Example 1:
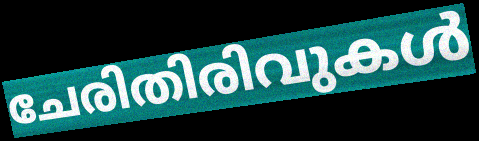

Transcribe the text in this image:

ചേരിതിരിവുകൾ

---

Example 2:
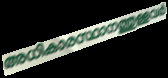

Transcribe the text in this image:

അധികാരസ്ഥാനത്തുള്ളവർ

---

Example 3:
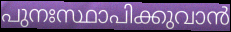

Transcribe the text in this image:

പുനഃസ്ഥാപിക്കുവാൻ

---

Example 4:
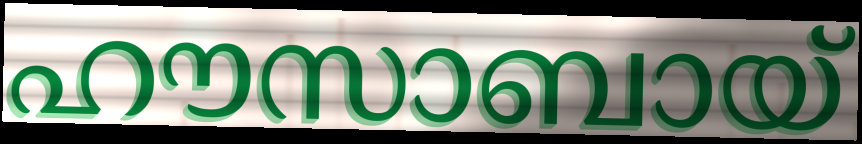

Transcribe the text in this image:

ഹൗസാബായ്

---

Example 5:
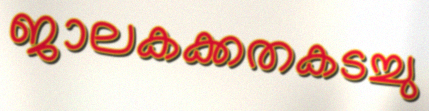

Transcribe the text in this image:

ജാലകക്കതകടച്ചു